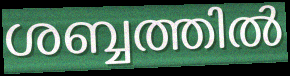
ശബ്ബത്തിൽ